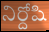
నిర్దోషి